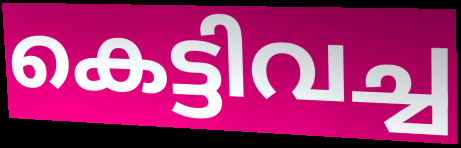
കെട്ടിവച്ച